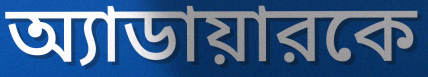
অ্যাডায়ারকে